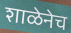
शाळेनेच